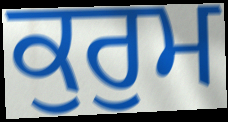
ਕੁਰੁਮ